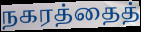
நகரத்தைத்